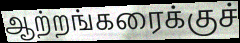
ஆற்றங்கரைக்குச்